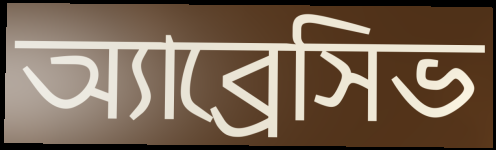
অ্যাব্রেসিভ